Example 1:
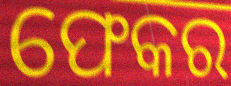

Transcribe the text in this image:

ଫେକର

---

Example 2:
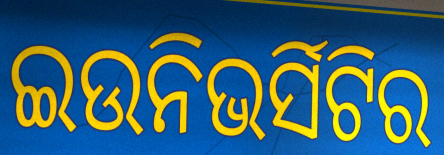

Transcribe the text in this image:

ଇଉନିଭର୍ସିଟିର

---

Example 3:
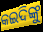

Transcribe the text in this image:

କଇଦିଙ୍କୁ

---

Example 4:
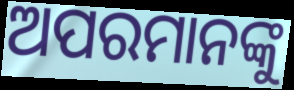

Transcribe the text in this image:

ଅପରମାନଙ୍କୁ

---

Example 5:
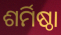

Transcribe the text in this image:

ଶର୍ମିଷ୍ଠା